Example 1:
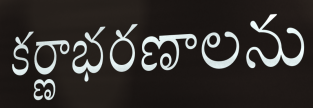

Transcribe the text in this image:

కర్ణాభరణాలను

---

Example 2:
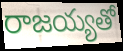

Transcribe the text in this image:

రాజయ్యతో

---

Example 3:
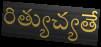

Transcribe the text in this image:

రిత్యుచ్యతే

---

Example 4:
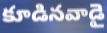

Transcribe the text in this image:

కూడినవాడై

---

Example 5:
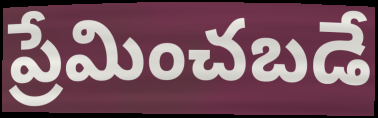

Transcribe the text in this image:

ప్రేమించబడే